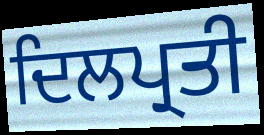
ਦਿਲਪ੍ਰਤੀ